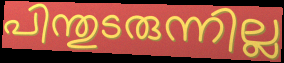
പിന്തുടരുന്നില്ല